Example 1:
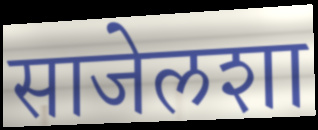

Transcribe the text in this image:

साजेलशा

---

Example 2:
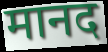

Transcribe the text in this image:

मानद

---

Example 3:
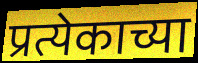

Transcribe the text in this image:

प्रत्येकाच्या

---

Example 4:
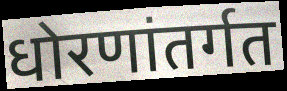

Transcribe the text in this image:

धोरणांतर्गत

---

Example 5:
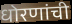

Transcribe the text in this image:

धोरणांची